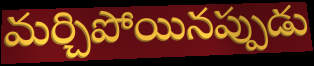
మర్చిపోయినప్పుడు